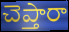
చెప్తారా